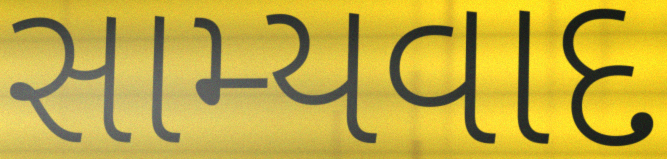
સામ્યવાદ